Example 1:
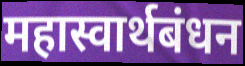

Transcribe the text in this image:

महास्वार्थबंधन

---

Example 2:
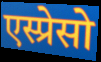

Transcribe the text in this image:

एस्प्रेसो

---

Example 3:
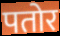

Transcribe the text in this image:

पतोर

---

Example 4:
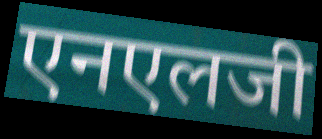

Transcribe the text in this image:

एनएलजी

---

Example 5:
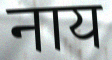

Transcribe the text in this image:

नाय